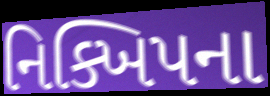
નિક્ખિપના